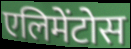
एलिमेंटोस